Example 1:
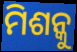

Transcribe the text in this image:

ମିଶନ୍କୁ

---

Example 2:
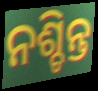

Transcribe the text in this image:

ନଶ୍ଚିନ୍ତ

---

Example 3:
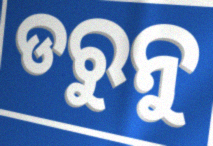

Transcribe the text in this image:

ଡରୁନୁ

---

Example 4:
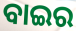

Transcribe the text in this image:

ବାଇର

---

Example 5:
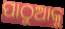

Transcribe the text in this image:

ପାଠୁଆକୁ